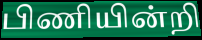
பிணியின்றி